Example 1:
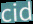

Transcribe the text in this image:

cid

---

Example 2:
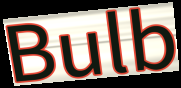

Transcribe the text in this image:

Bulb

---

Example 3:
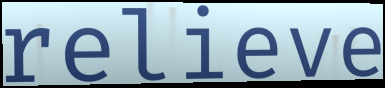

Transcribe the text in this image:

relieve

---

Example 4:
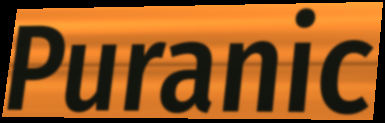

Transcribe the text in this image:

Puranic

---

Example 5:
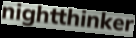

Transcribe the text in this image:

nightthinker